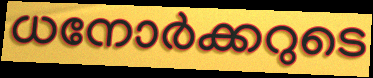
ധനോർക്കറുടെ